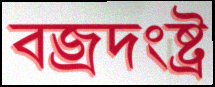
বজ্রদংষ্ট্র